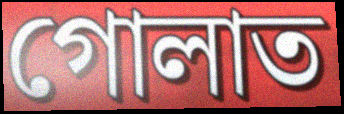
গোলাত